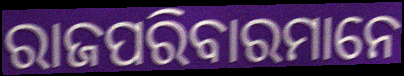
ରାଜପରିବାରମାନେ